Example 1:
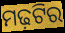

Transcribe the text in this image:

ମଢ଼ଟିର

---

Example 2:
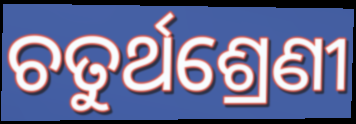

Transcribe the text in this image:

ଚତୁର୍ଥଶ୍ରେଣୀ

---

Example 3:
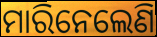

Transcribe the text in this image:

ମାରିନେଲେଣି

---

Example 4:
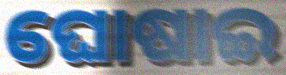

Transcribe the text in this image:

ଘୋଷାଇ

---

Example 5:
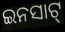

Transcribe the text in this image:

ଇନସାଟ୍